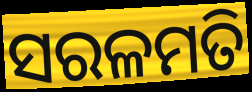
ସରଳମତି